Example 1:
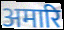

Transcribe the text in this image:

अमारि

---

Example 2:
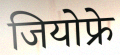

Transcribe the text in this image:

जियोफ्रे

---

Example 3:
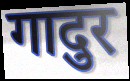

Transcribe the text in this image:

गादुर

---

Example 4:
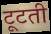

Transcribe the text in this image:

टूटती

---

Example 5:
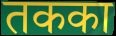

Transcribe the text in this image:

तकका